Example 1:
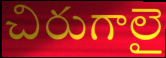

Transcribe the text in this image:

చిరుగాలై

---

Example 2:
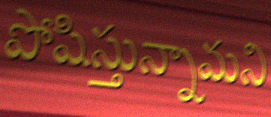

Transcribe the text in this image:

పోషిస్తున్నామని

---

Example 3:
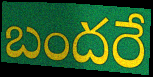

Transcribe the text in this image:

బందరే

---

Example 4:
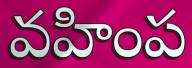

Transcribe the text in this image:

వహింప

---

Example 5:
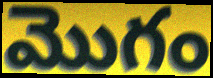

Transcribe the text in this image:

మొగం